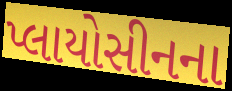
પ્લાયોસીનના